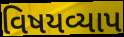
વિષયવ્યાપ